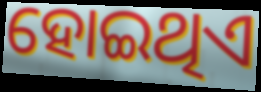
ହୋଇଥିଏ